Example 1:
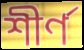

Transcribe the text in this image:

শীর্ণ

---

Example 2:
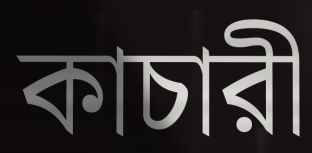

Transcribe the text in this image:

কাচারী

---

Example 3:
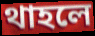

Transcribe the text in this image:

থাহলে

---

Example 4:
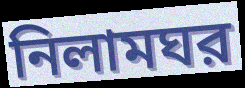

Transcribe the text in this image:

নিলামঘর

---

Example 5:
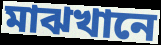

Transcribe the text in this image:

মাঝখানে